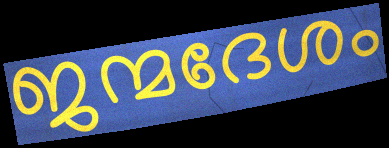
ജന്മദേശം